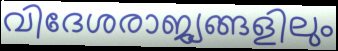
വിദേശരാജ്യങ്ങളിലും